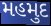
મહમુદ